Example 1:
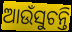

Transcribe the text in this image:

ଆଉଁସୁଚନ୍ତି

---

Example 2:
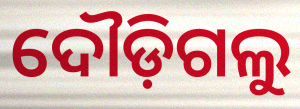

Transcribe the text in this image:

ଦୌଡ଼ିଗଲୁ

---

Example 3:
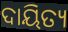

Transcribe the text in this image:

ଦାୟିତ୍ୟ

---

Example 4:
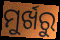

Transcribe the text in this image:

ମୁର୍ଖରୁ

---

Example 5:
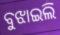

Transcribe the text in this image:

ବୁଝାଇଲି